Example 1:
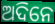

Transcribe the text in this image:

ଅଦିନେ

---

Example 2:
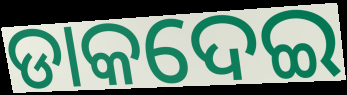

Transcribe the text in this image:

ଡାକଦେଇ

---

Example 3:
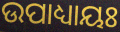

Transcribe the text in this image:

ଉପାଧ୍ୟାୟଃ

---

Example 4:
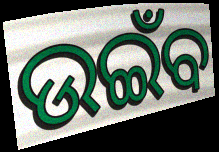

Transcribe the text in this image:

ଉଇଁବ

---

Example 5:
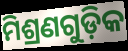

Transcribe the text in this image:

ମିଶ୍ରଣଗୁଡ଼ିକ